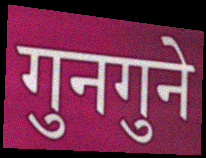
गुनगुने